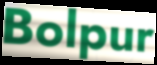
Bolpur